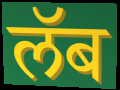
लॅब